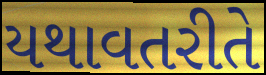
યથાવતરીતે